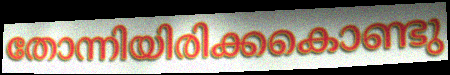
തോന്നിയിരിക്കകൊണ്ടു